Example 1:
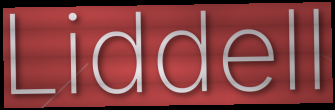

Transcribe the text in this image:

Liddell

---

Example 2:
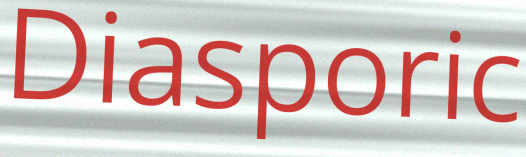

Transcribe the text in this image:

Diasporic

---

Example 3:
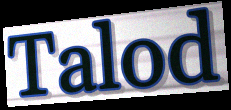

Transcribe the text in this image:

Talod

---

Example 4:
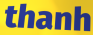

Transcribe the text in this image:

thanh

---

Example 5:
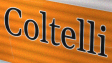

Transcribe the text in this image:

Coltelli